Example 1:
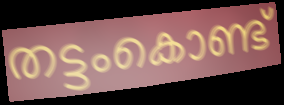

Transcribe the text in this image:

തട്ടംകൊണ്ട്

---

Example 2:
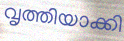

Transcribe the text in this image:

വൃത്തിയാക്കി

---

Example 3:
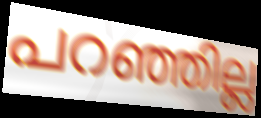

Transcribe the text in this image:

പറഞ്ഞില്ല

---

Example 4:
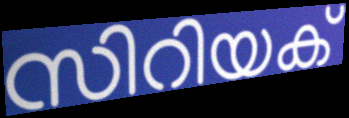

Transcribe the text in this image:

സിറിയക്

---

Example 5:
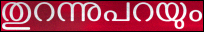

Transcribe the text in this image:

തുറന്നുപറയും